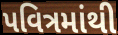
પવિત્રમાંથી